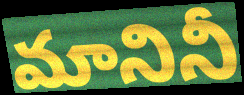
మానినీ